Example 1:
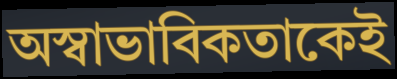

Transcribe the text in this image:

অস্বাভাবিকতাকেই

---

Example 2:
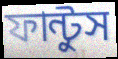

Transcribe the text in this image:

ফান্টুস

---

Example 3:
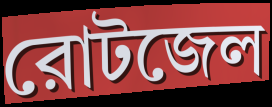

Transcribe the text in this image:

রোটজেল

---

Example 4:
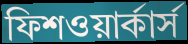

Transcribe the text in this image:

ফিশওয়ার্কার্স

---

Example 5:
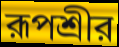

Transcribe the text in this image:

রূপশ্রীর